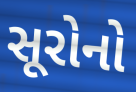
સૂરોનો